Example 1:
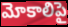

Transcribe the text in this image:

మోకాలిపై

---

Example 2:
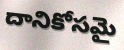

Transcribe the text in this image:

దానికోసమై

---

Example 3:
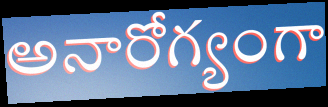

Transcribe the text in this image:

అనారోగ్యంగా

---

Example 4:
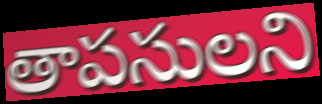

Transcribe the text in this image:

తాపసులని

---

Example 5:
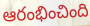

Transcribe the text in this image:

ఆరంభించింది